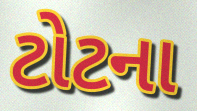
ટોટના